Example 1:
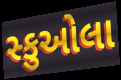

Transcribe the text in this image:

સ્કુઓલા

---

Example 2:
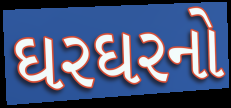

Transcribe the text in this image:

ઘરઘરનો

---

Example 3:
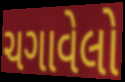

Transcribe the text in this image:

ચગાવેલો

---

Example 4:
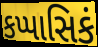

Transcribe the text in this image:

કપ્પાસિકં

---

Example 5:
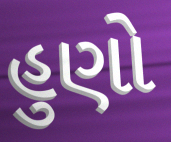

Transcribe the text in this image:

હુણો